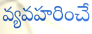
వ్యవహరించే